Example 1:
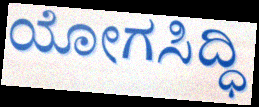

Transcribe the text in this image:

ಯೋಗಸಿದ್ಧಿ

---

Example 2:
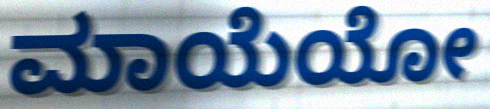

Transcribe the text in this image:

ಮಾಯೆಯೋ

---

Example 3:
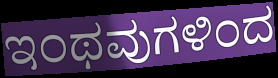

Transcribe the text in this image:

ಇಂಥವುಗಳಿಂದ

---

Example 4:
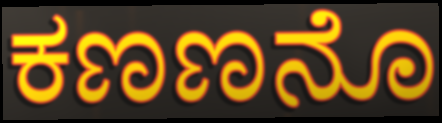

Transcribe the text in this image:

ಕಣಣನೊ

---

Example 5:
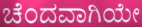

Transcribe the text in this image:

ಚೆಂದವಾಗಿಯೇ